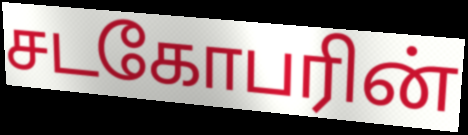
சடகோபரின்